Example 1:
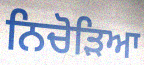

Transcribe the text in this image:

ਨਿਚੋੜਿਆ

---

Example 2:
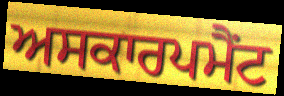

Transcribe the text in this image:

ਅਸਕਾਰਪਮੈਂਟ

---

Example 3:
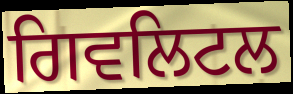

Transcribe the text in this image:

ਗਿਵਲਿਟਲ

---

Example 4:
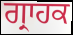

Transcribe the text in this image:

ਗ੍ਰਾਹਕ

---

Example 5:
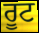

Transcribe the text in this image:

ਰੂਟ